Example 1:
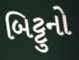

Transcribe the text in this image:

બિટ્ટુનો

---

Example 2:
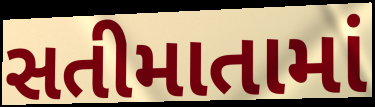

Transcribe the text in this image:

સતીમાતામાં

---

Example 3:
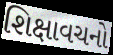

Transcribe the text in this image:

શિક્ષાવચનો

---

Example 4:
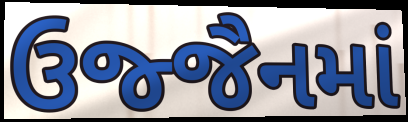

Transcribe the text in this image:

ઉજ્જૈનમાં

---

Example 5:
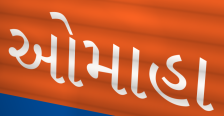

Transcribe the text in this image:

ઓમાહા